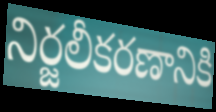
నిర్జలీకరణానికి